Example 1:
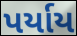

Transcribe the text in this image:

પર્યાય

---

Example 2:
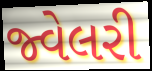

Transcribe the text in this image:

જ્વેલરી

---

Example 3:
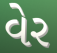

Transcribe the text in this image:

વેર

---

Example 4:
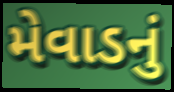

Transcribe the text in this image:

મેવાડનું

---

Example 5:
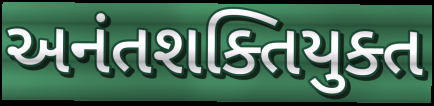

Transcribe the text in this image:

અનંતશક્તિયુક્ત